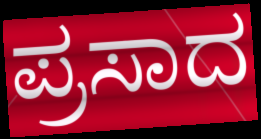
ಪ್ರಸಾದ